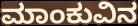
ಮಾಂಕುವಿನ